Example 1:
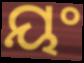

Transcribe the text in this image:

ୟଂ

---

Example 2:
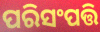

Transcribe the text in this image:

ପରିସଂପତ୍ତି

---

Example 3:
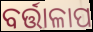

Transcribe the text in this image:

ବର୍ତ୍ତାଳାପ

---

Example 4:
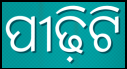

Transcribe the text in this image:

ପୀଢ଼ିଟି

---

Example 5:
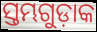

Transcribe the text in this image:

ସ୍ତମ୍ଭଗୁଡ଼ାକ